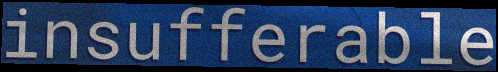
insufferable